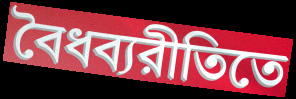
বৈধব্যরীতিতে